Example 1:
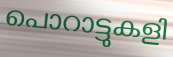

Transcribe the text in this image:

പൊറാട്ടുകളി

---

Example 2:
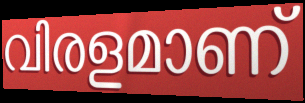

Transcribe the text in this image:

വിരളമാണ്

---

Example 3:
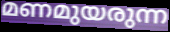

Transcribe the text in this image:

മണമുയരുന്ന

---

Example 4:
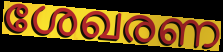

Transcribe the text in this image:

ശേഖരണ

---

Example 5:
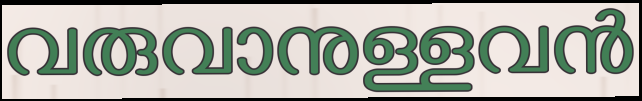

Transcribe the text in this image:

വരുവാനുള്ളവൻ